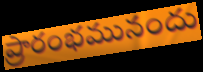
ప్రారంభమునందు